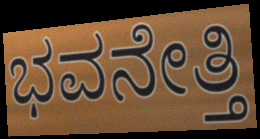
ಭವನೇತ್ತಿ